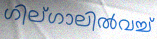
ഗില്ഗാലിൽവച്ച്